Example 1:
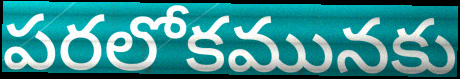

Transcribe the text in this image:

పరలోకమునకు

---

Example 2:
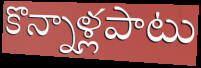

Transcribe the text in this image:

కొన్నాళ్లపాటు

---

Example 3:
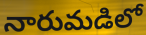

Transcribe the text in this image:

నారుమడిలో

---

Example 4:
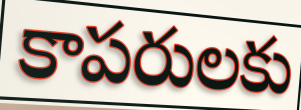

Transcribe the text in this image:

కాపరులకు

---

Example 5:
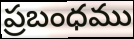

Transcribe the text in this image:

ప్రబంధము